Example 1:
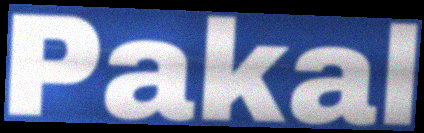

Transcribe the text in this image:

Pakal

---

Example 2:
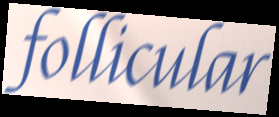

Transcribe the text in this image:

follicular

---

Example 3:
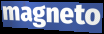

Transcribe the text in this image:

magneto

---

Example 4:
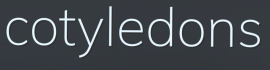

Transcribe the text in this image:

cotyledons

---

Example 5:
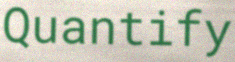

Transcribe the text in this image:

Quantify